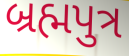
બ્રહ્મપુત્ર